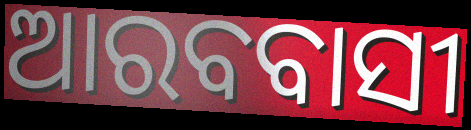
ଆରବବାସୀ